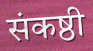
संकष्ठी